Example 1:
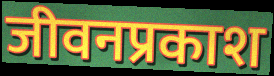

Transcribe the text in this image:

जीवनप्रकाश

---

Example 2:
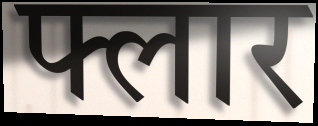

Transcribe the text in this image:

फ्लार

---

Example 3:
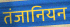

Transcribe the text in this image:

तंजानियन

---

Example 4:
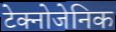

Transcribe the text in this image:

टेक्नोजेनिक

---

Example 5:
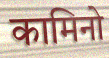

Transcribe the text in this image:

कामिनो